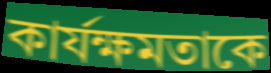
কার্যক্ষমতাকে